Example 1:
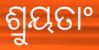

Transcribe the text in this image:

ଶ୍ରୁୟତାଂ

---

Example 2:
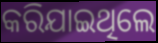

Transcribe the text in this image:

କରିଯାଇଥିଲେ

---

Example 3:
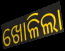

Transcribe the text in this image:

ଖୋଳିଲା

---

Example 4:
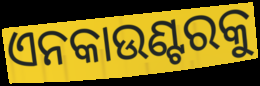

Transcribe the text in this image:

ଏନକାଉଣ୍ଟରକୁ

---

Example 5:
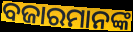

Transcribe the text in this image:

ବଜାରମାନଙ୍କ